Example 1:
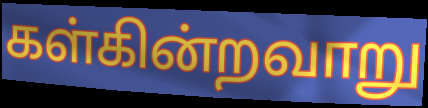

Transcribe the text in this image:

கள்கின்றவாறு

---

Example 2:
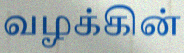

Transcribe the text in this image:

வழக்கின்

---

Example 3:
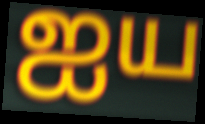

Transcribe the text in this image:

ஐய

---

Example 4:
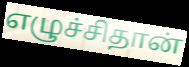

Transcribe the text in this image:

எழுச்சிதான்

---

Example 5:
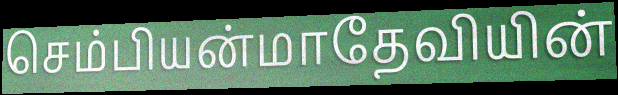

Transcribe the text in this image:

செம்பியன்மாதேவியின்